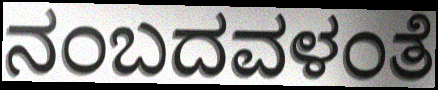
ನಂಬದವಳಂತೆ